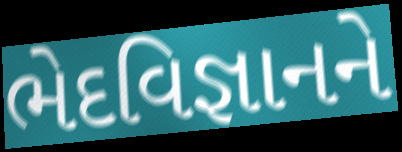
ભેદવિજ્ઞાનને